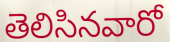
తెలిసినవారో